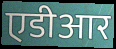
एडीआर